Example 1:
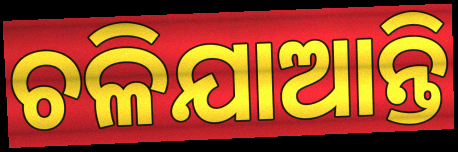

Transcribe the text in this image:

ଚଳିଯାଆନ୍ତି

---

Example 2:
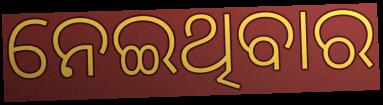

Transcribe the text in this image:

ନେଇଥିବାର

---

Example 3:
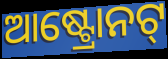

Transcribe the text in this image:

ଆଷ୍ଟ୍ରୋନଟ୍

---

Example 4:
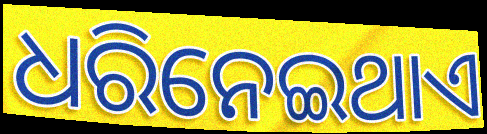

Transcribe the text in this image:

ଧରିନେଇଥାଏ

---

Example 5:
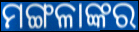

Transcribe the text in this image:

ମଙ୍ଗଳାଙ୍କର